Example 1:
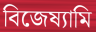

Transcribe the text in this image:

বিজেষ্যামি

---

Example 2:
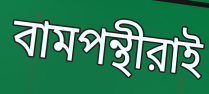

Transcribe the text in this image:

বামপন্থীরাই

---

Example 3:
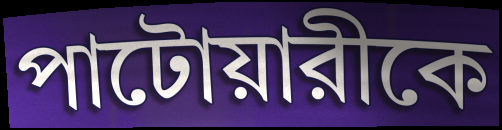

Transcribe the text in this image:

পাটোয়ারীকে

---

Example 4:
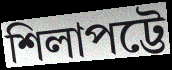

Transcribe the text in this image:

শিলাপট্টে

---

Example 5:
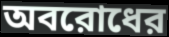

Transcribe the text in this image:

অবরোধের